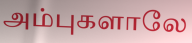
அம்புகளாலே